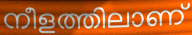
നീളത്തിലാണ്